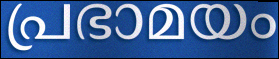
പ്രഭാമയം